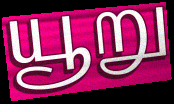
யூறு